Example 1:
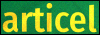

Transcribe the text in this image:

articel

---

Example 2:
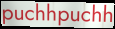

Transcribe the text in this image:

puchhpuchh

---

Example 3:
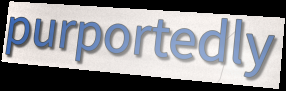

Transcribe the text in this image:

purportedly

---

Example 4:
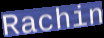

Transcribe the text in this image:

Rachin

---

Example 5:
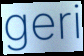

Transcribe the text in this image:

geri